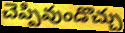
చెప్పివుండొచ్చు